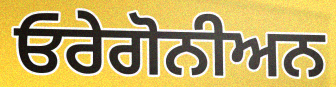
ਓਰੇਗੋਨੀਅਨ